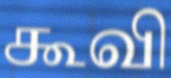
கூவி